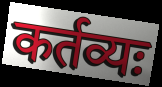
कर्तव्यः